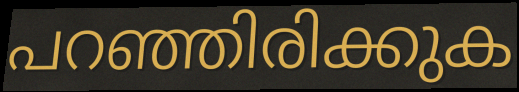
പറഞ്ഞിരിക്കുക